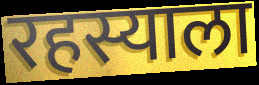
रहस्याला